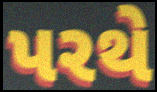
પરથે